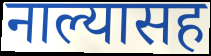
नाल्यासह